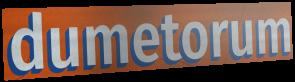
dumetorum